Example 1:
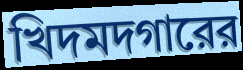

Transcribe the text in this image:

খিদমদগারের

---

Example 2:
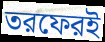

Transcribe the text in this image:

তরফেরই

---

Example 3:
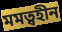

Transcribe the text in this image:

মমত্বহীন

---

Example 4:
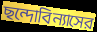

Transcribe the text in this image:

ছন্দোবিন্যাসের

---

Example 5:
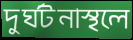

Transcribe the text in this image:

দুর্ঘটনাস্থলে